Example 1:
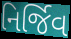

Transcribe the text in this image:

નિર્જિવ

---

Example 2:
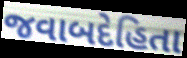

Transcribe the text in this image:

જવાબદેહિતા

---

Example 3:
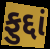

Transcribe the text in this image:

ફુદ્દાં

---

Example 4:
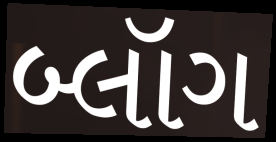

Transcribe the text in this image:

બ્લૉગ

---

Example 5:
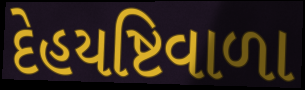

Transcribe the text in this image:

દેહયષ્ટિવાળા